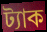
ট্যাক